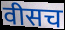
वीसच